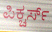
ಪಿಕ್ಚರ್ಸ್